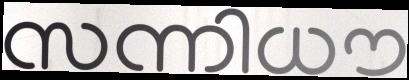
സന്നിധൗ